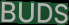
BUDS